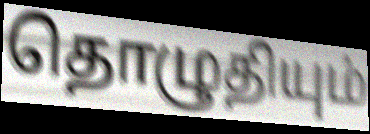
தொழுதியும்